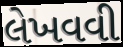
લેખવવી